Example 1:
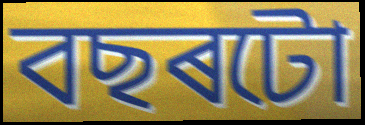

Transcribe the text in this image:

বছৰটো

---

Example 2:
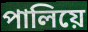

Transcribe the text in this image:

পালিয়ে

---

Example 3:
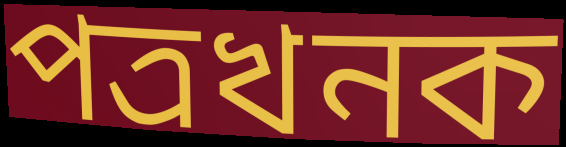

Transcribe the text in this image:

পত্ৰখনক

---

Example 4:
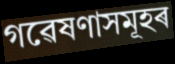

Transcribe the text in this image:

গৱেষণাসমূহৰ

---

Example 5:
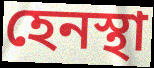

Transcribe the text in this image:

হেনস্থা